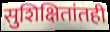
सुशिक्षितांतही